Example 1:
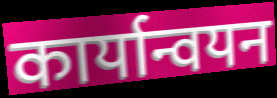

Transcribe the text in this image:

कार्यान्‍वयन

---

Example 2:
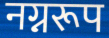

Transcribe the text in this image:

नग्नरूप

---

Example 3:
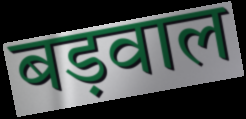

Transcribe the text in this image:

बड़वाल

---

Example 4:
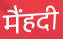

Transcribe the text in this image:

मैंहदी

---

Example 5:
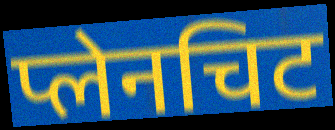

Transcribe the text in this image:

प्लेनचिट